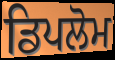
ਡਿਪਲੋਮ